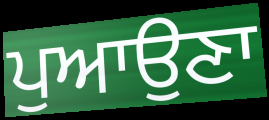
ਪੁਆਉਣਾ